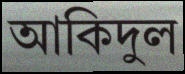
আকিদুল